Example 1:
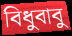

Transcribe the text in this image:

বিধুবাবু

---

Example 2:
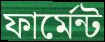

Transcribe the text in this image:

ফার্মেন্ট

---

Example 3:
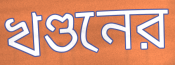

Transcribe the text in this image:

খণ্ডনের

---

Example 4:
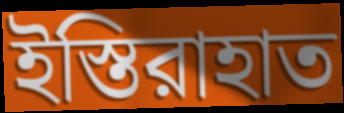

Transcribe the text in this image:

ইস্তিরাহাত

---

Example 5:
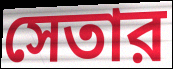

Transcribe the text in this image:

সেতার